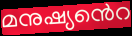
മനുഷ്യൻെറ